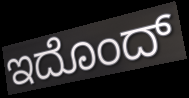
ಇದೊಂದ್